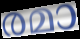
രമാ